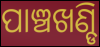
ପାଞ୍ଚଖଣ୍ଡି